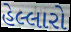
હેલ્લારો